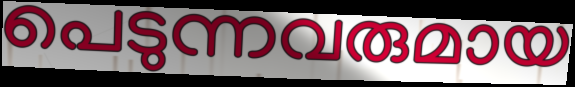
പെടുന്നവരുമായ